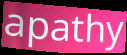
apathy